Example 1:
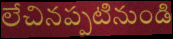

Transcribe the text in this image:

లేచినప్పటినుండి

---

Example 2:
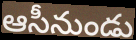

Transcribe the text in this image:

ఆసీనుండు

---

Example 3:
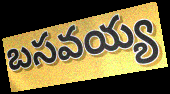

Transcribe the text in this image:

బసవయ్య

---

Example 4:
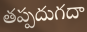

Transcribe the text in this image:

తప్పదుగదా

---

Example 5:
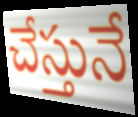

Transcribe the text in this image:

చేస్తునే